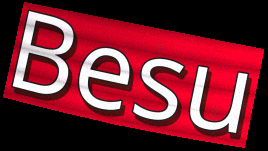
Besu